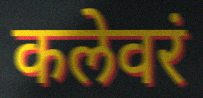
कलेवरं